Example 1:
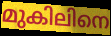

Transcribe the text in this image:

മുകിലിനെ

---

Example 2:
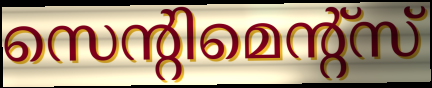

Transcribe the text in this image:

സെന്റിമെന്റ്സ്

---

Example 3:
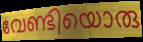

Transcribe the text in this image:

വേണ്ടിയൊരു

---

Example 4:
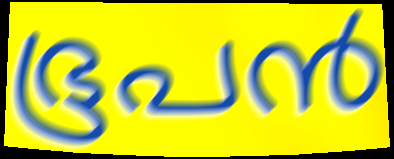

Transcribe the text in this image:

ഭൂപൻ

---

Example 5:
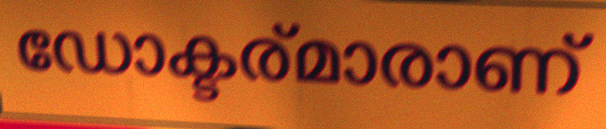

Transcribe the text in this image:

ഡോക്ടര്മാരാണ്